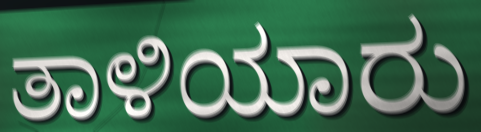
ತಾಳಿಯಾರು